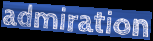
admiration